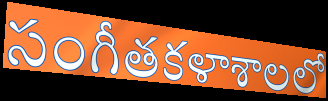
సంగీతకళాశాలలో